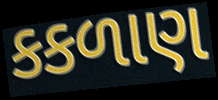
કકળાણ